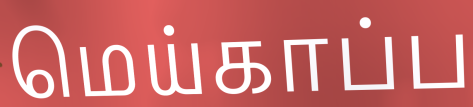
மெய்காப்ப